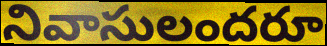
నివాసులందరూ